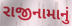
રાજીનામાનું